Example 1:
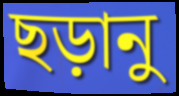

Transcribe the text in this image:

ছড়ানু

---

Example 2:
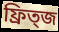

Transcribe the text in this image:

ফ্রিত্জ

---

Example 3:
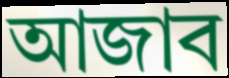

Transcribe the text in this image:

আজাব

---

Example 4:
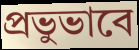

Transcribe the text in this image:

প্রভুভাবে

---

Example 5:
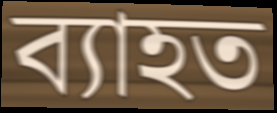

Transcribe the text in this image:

ব্যাহত